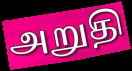
அறுதி